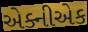
એક્નીએક